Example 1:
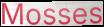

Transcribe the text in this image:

Mosses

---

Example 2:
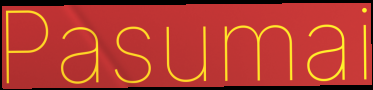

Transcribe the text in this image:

Pasumai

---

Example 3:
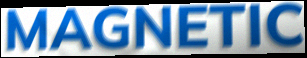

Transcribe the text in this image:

MAGNETIC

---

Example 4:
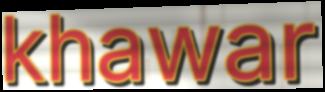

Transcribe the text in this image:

khawar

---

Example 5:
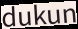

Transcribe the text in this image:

dukun